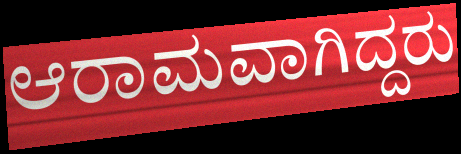
ಆರಾಮವಾಗಿದ್ದರು